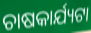
ଚାଷକାର୍ଯ୍ୟଟା